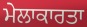
ਮੇਲਾਕਾਰਤਾ